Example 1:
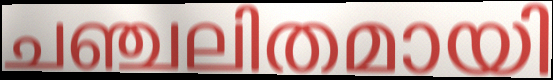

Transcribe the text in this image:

ചഞ്ചലിതമായി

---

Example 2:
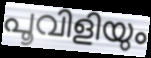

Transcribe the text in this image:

പൂവിളിയും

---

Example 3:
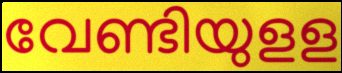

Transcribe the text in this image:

വേണ്ടിയുളള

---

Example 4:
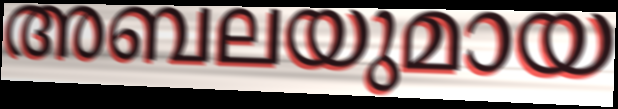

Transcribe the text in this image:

അബലയുമായ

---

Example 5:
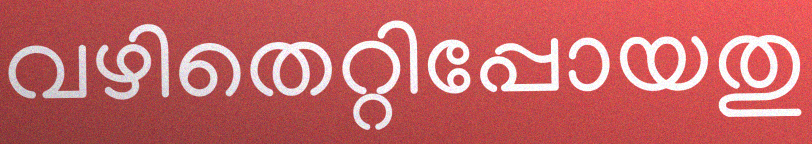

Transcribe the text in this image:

വഴിതെറ്റിപ്പോയതു